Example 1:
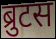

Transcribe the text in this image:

ब्रुटस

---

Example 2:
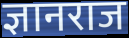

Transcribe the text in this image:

ज्ञानराज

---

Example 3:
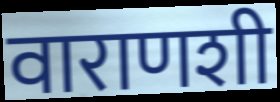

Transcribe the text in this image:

वाराणशी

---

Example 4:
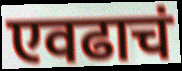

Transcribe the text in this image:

एवढाचं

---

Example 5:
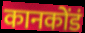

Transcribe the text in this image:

कानकोंडं